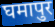
घमापुर